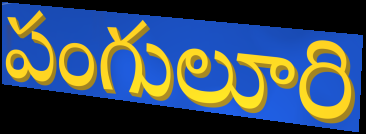
పంగులూరి